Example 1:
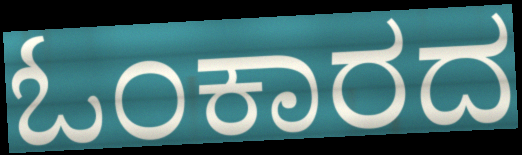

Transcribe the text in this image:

ಓಂಕಾರದ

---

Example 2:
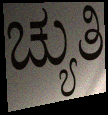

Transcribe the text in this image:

ಚ್ಯುತಿ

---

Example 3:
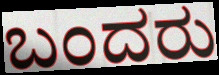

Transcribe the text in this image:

ಬಂದರು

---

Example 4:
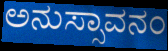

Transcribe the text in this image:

ಅನುಸ್ಸಾವನಂ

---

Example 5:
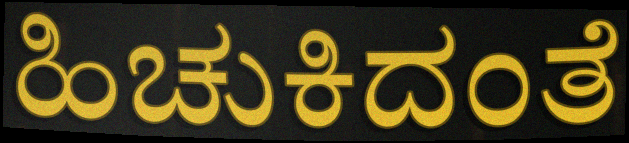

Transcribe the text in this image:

ಹಿಚುಕಿದಂತೆ